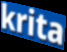
krita